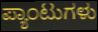
ಪ್ಯಾಂಟುಗಳು